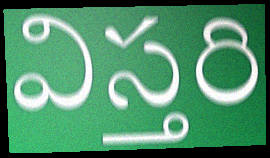
విస్తరి